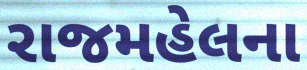
રાજમહેલના